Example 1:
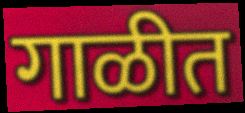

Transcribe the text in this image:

गाळीत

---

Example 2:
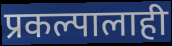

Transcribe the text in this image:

प्रकल्पालाही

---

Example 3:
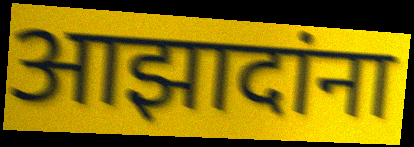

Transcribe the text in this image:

आझादांना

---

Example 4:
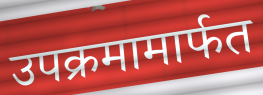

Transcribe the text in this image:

उपक्रमामार्फत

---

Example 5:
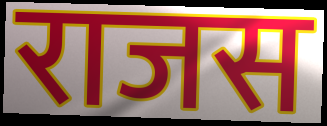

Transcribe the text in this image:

राजस